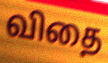
விதை